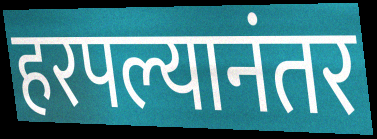
हरपल्यानंतर